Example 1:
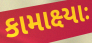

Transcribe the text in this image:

કામાક્ષ્યાઃ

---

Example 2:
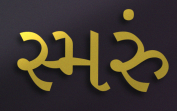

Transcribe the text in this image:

સ્મરું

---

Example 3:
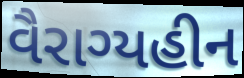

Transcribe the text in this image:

વૈરાગ્યહીન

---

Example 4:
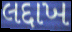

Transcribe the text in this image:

લદ્દાખ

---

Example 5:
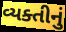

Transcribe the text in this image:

વ્યક્તીનું